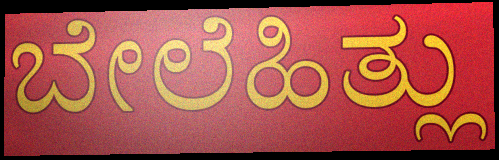
ಬೇಲೆಹಿತ್ಲು